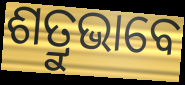
ଶତ୍ରୁଭାବେ